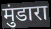
मुंडारा